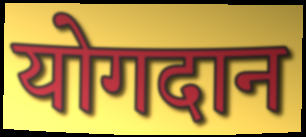
योगदान